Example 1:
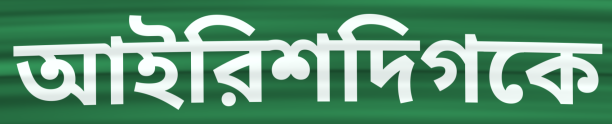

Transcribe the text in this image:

আইরিশদিগকে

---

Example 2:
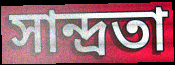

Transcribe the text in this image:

সান্দ্রতা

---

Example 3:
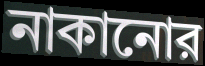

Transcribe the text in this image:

নাকানোর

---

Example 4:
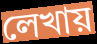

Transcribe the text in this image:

লেখায়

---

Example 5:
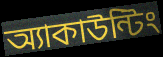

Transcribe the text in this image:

অ্যাকাউন্টিং